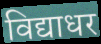
विद्याधर